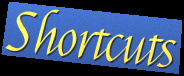
Shortcuts